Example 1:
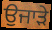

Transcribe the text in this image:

ਉਜਾੜੇ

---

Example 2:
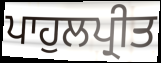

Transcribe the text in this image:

ਪਾਹੁਲਪ੍ਰੀਤ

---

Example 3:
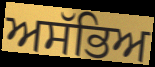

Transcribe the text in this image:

ਅਸੱਭਿਅ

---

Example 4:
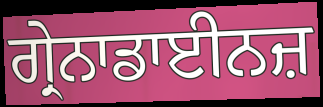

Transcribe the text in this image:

ਗ੍ਰੇਨਾਡਾਈਨਜ਼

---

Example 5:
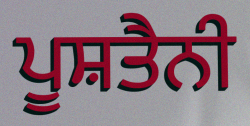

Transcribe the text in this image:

ਪੂਸ਼ਤੈਨੀ